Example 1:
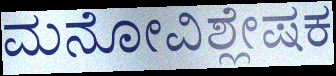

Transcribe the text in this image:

ಮನೋವಿಶ್ಲೇಷಕ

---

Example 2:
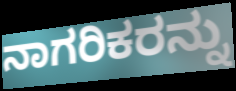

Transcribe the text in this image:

ನಾಗರಿಕರನ್ನು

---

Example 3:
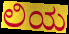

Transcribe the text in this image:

ಲಿಯ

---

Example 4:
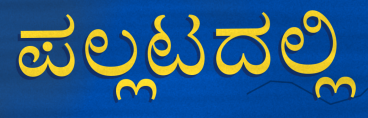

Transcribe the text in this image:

ಪಲ್ಲಟದಲ್ಲಿ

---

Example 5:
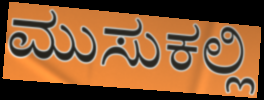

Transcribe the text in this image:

ಮುಸುಕಲ್ಲಿ